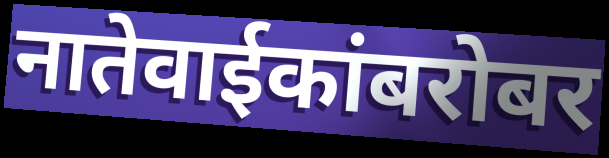
नातेवाईकांबरोबर